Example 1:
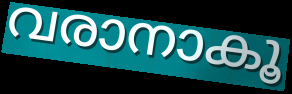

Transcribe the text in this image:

വരാനാകൂ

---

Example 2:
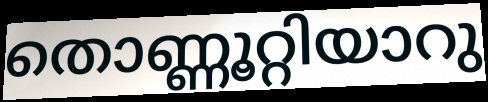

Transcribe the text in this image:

തൊണ്ണൂറ്റിയാറു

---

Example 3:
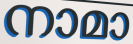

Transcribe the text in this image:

നാമാ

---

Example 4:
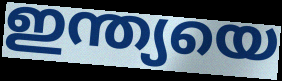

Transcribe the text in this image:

ഇന്ത്യയെ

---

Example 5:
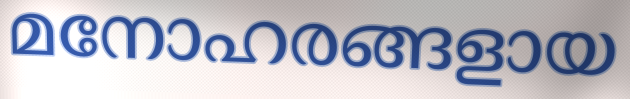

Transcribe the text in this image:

മനോഹരങ്ങളായ